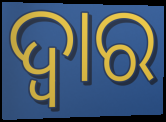
ଦ୍ବାର